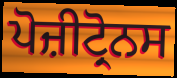
ਪੋਜ਼ੀਟ੍ਰੋਨਸ